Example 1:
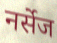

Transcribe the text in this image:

नर्सेज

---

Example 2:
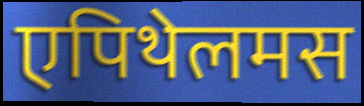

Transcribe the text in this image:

एपिथेलमस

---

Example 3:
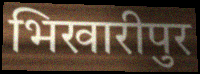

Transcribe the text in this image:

भिखारीपुर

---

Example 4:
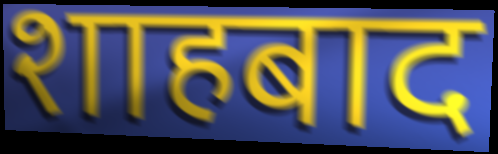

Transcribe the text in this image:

शाहबाद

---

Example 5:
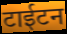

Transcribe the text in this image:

टाईटन